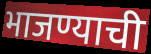
भाजण्याची